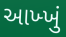
આખ્ખું